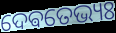
ଦେଵତେଭ୍ୟଃ